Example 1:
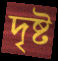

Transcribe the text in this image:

দৃষ্ট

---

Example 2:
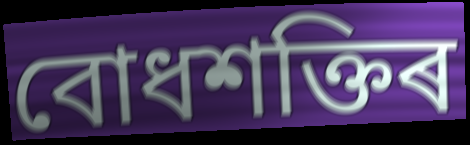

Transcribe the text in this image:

বোধশক্তিৰ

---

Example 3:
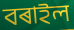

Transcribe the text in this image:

বৰাইল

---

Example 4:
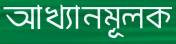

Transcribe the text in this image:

আখ্যানমূলক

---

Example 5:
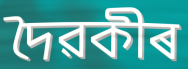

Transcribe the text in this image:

দৈৱকীৰ